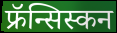
फ्रॅन्सिस्कन